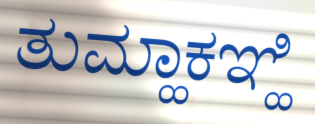
ತುಮ್ಹಾಕಞ್ಹಿ